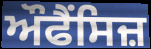
ਔਫੈਂਸਿਜ਼